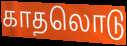
காதலொடு